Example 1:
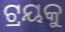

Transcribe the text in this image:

ଟ୍ରୟକୁ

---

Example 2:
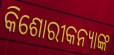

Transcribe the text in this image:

କିଶୋରୀକନ୍ୟାଙ୍କ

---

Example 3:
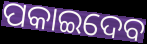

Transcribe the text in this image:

ପକାଇଦେବ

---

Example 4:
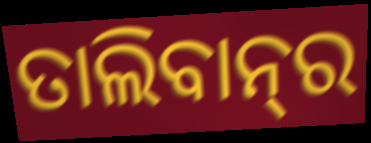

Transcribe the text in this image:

ତାଲିବାନ୍‌ର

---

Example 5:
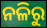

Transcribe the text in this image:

ନଳିରୁ